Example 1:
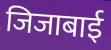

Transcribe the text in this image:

जिजाबाई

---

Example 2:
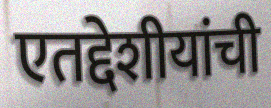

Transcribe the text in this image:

एतद्देशीयांची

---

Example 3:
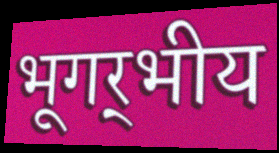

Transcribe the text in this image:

भूगर्भीय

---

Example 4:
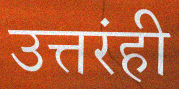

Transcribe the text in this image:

उत्तरंही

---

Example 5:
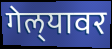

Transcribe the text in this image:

गेल्यावर